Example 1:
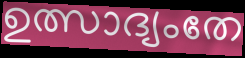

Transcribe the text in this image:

ഉത്സാദ്യംതേ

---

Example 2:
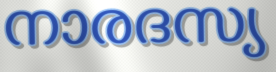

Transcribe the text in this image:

നാരദസ്യ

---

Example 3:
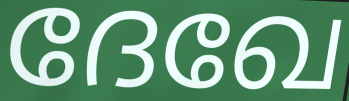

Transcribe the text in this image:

ദേഖേ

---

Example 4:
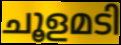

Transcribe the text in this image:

ചൂളമടി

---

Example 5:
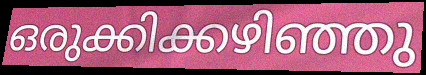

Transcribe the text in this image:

ഒരുക്കിക്കഴിഞ്ഞു